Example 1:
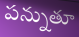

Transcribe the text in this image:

పన్నుతూ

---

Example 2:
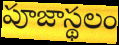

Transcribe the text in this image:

పూజాస్థలం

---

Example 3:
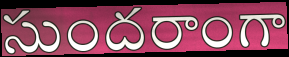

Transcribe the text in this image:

సుందరాంగా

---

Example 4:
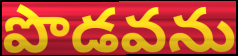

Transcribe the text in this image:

పొడవను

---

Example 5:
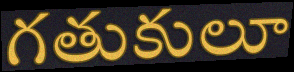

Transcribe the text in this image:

గతుకులూ